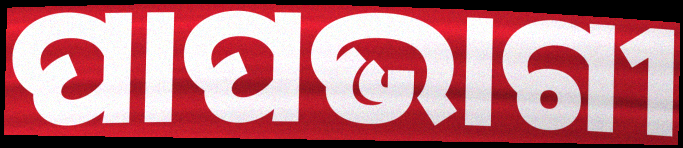
ପାପଭାଗୀ